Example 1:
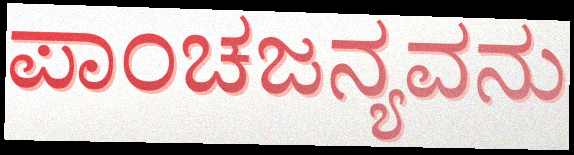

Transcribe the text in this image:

ಪಾಂಚಜನ್ಯವನು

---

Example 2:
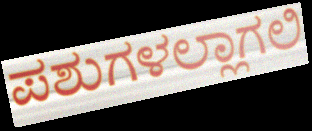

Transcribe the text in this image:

ಪಶುಗಳಲ್ಲಾಗಲಿ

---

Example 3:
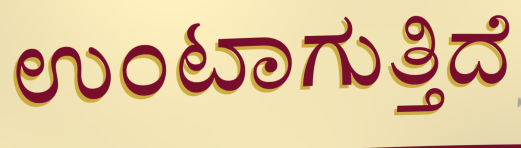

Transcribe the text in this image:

ಉಂಟಾಗುತ್ತಿದೆ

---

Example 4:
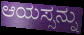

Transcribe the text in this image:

ಆಯಸ್ಸನ್ನು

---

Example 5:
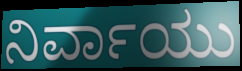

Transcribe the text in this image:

ನಿರ್ವಾಯು